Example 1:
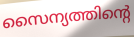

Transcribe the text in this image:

സൈന്യത്തിന്റെ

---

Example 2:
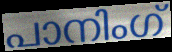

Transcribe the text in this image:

പാനിംഗ്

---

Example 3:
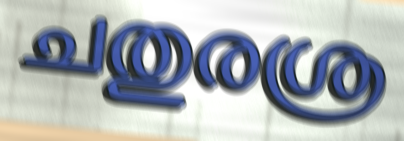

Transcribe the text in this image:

ചതുരശ്ര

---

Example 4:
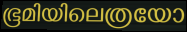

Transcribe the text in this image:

ഭൂമിയിലെത്രയോ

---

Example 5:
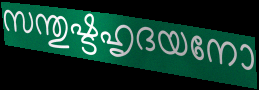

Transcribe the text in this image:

സന്തുഷ്ടഹൃദയനോ